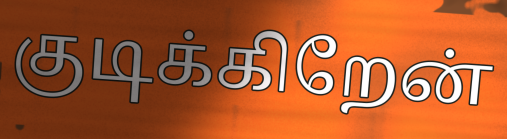
குடிக்கிறேன்